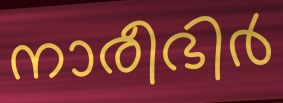
നാരീഭിർ